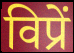
विप्रें